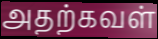
அதற்கவள்